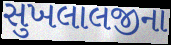
સુખલાલજીના